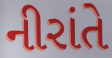
નીરાંતે